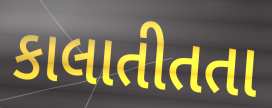
કાલાતીતતા